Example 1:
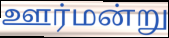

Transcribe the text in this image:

ஊர்மன்று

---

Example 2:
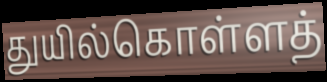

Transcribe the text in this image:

துயில்கொள்ளத்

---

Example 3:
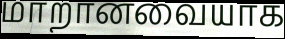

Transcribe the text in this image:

மாறானவையாக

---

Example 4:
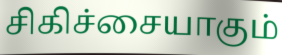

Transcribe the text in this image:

சிகிச்சையாகும்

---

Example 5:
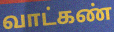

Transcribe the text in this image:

வாட்கண்